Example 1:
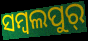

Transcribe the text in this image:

ସମ୍ବଲପୁର୍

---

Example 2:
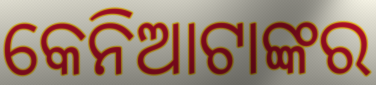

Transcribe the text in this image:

କେନିଆଟାଙ୍କର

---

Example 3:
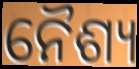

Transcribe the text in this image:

ନୈଶ୍ୟ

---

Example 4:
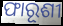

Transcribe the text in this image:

ଫାରୂଶୀ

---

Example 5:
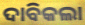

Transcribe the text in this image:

ଦାବିକଲା